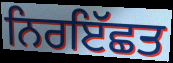
ਨਿਰਇੱਛਤ